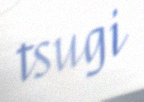
tsugi